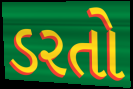
ડરતો